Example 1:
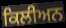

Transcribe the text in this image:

ਕਿਲੀਅਨ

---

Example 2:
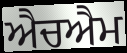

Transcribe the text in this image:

ਐਚਐਮ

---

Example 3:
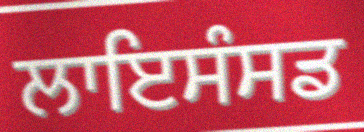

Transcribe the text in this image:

ਲਾਇਸੰਸਡ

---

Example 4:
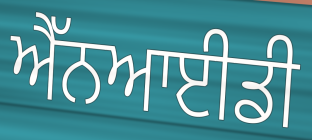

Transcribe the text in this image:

ਐੱਨਆਈਡੀ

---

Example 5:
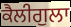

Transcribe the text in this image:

ਕੈਲੀਗੁਲਾ